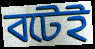
বটেই